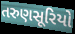
તરુણસૂરિયો